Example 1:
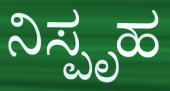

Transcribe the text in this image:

ನಿಸ್ಪೃಹ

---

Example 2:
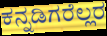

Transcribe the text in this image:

ಕನ್ನಡಿಗರೆಲ್ಲರ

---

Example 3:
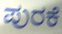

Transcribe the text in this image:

ಪುರಕೆ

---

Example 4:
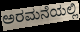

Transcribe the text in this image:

ಅರಮನೆಯಲ್ಲಿ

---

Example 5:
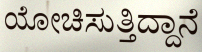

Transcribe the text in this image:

ಯೋಚಿಸುತ್ತಿದ್ದಾನೆ